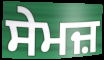
ਸੇਮਜ਼